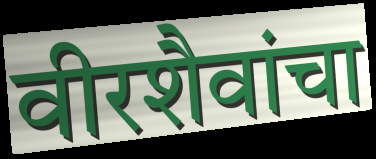
वीरशैवांचा